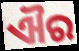
ଐର